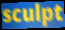
sculpt